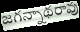
జగన్నాథరావు